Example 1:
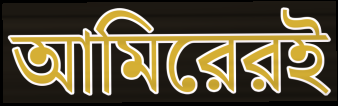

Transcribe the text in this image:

আমিরেরই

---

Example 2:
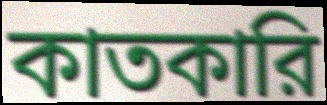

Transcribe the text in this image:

কাতকারি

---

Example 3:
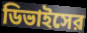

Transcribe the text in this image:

ডিভাইসের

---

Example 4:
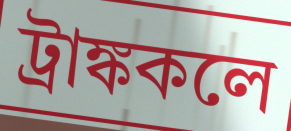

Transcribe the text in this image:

ট্রাঙ্ককলে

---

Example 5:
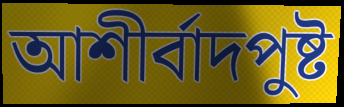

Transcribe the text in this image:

আশীর্বাদপুষ্ট